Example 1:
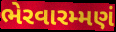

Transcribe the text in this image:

ભેરવારમ્મણં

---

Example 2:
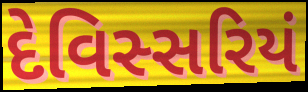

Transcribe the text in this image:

દેવિસ્સરિયં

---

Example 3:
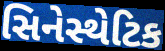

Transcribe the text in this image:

સિનેસ્થેટિક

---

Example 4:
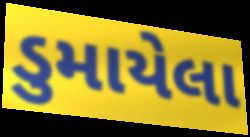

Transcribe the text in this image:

ડુમાયેલા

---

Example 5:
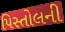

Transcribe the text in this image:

પિસ્તોલની